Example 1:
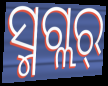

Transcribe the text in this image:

ସ୍ମଗ୍ଲର୍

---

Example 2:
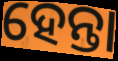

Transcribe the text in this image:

ହେନ୍ତା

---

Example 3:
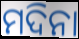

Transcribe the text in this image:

ମଦିନା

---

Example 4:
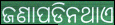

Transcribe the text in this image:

ଜଣାପଡିନଥାଏ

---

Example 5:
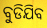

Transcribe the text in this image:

ବୁଡିଯିବ